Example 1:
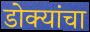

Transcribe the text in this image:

डोक्यांचा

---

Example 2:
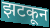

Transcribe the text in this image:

झटकून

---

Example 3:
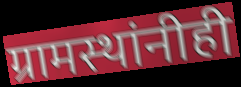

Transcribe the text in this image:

ग्रामस्थांनीही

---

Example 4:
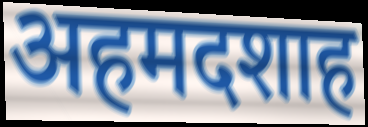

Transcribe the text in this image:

अहमदशाह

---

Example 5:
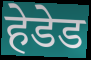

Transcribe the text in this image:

हेडेड